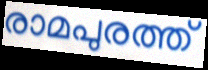
രാമപുരത്ത്